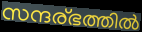
സന്ദര്ഭത്തിൽ